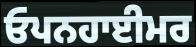
ਓਪਨਹਾਈਮਰ